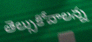
తెల్సుకోవాలన్న